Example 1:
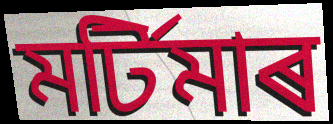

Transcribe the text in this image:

মৰ্টিমাৰ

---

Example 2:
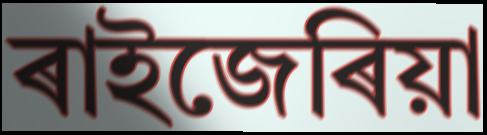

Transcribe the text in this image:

ৰাইজেৰিয়া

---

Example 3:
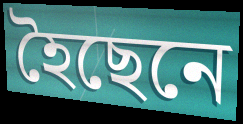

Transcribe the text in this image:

হৈছেনে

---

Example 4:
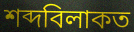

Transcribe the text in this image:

শব্দবিলাকত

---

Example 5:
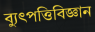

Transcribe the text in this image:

ব্যুৎপত্তিবিজ্ঞান